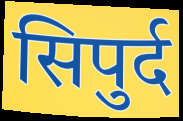
सिपुर्द